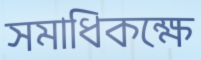
সমাধিকক্ষে